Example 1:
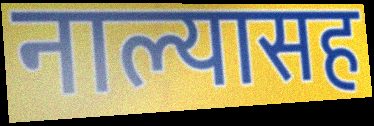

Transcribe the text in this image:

नाल्यासह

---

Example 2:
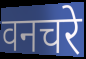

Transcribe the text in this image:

वनचरे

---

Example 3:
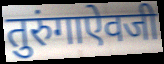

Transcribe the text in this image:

तुरुंगाऐवजी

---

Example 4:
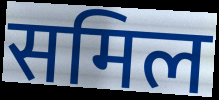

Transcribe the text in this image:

समिल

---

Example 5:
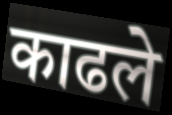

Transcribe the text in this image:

काढले